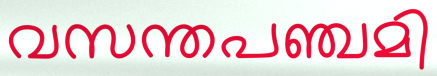
വസന്തപഞ്ചമി